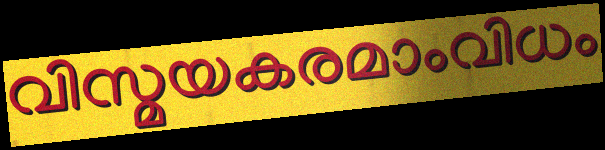
വിസ്മയകരമാംവിധം